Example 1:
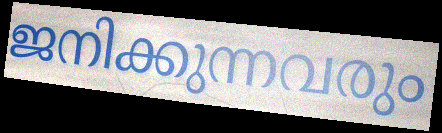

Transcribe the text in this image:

ജനിക്കുന്നവരും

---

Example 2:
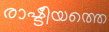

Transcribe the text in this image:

രാഷ്ടീയത്തെ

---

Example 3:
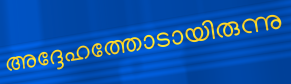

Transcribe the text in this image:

അദ്ദേഹത്തോടായിരുന്നു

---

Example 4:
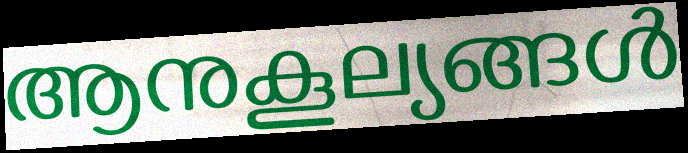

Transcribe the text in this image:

ആനുകൂല്യങ്ങൾ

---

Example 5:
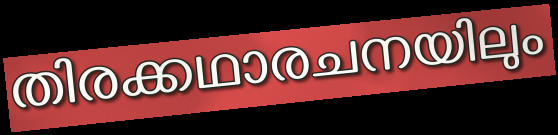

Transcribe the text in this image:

തിരക്കഥാരചനയിലും